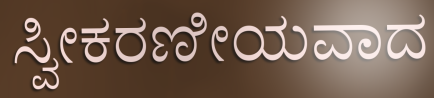
ಸ್ವೀಕರಣೀಯವಾದ